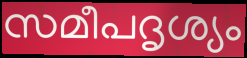
സമീപദൃശ്യം